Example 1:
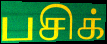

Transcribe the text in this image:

பசிக்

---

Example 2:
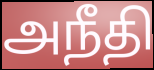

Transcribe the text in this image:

அநீதி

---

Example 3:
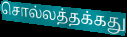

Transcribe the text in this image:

சொல்லத்தக்கது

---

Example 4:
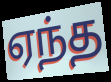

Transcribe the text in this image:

ஏந்த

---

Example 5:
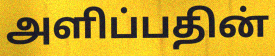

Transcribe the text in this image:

அளிப்பதின்